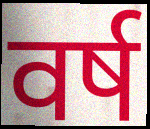
वर्ष